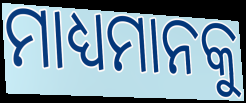
ମାଧ୍ୟମାନକୁ